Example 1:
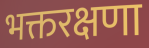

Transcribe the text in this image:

भक्तरक्षणा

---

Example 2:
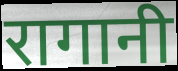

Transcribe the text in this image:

रागानी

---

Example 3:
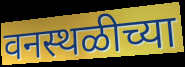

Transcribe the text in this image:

वनस्थळीच्या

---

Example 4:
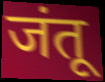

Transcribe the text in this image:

जंतू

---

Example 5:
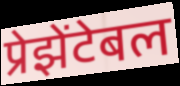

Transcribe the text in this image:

प्रेझेंटेबल